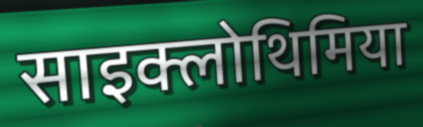
साइक्लोथिमिया